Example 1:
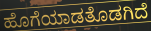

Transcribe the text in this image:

ಹೊಗೆಯಾಡತೊಡಗಿದೆ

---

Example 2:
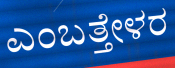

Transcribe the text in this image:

ಎಂಬತ್ತೇಳರ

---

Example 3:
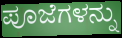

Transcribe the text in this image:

ಪೂಜೆಗಳನ್ನು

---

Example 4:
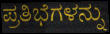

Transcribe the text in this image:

ಪ್ರತಿಭೆಗಳನ್ನು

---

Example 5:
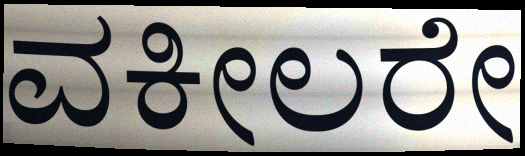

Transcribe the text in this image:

ವಕೀಲರೇ